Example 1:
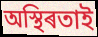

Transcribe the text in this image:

অস্থিৰতাই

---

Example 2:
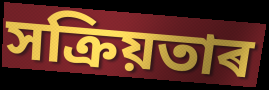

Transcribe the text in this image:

সক্ৰিয়তাৰ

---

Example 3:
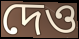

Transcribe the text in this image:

দেও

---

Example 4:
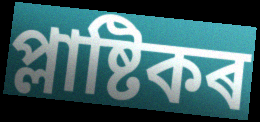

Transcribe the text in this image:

প্লাষ্টিকৰ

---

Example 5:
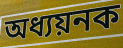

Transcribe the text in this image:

অধ্যয়নক